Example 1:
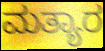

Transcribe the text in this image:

ಮತ್ಯಾರ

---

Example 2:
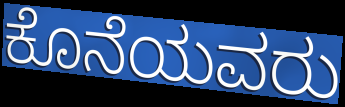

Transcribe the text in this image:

ಕೊನೆಯವರು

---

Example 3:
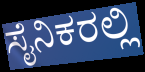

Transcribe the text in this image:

ಸೈನಿಕರಲ್ಲಿ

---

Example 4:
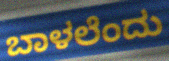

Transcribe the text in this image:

ಬಾಳಲೆಂದು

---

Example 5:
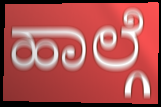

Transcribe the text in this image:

ಹಾಲ್ಗೆ